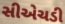
સીએચડી